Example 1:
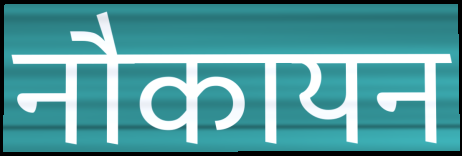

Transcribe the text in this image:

नौकायन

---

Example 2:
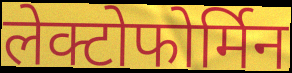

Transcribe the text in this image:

लेक्टोफोर्मिन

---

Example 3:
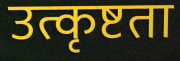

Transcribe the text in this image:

उत्कृष्टता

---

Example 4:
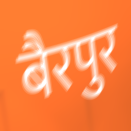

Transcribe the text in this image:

बैरपुर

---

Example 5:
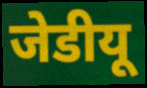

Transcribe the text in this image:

जेडीयू